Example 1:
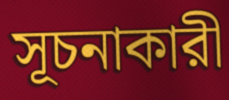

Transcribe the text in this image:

সূচনাকারী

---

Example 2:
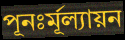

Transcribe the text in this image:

পূনঃর্মূল্যায়ন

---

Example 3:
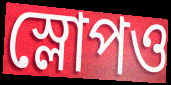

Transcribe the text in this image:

স্লোপও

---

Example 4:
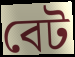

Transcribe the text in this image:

বেট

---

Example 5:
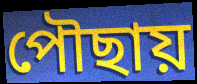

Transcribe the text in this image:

পৌছায়